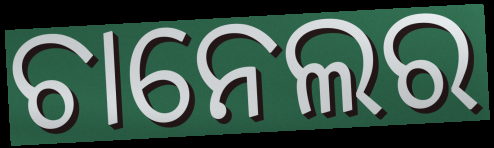
ଚାନେଲର